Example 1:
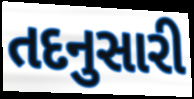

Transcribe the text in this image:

તદનુસારી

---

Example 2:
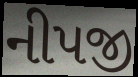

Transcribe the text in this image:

નીપજી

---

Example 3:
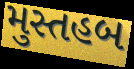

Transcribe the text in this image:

મુસ્તહબ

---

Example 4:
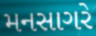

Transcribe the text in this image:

મનસાગરે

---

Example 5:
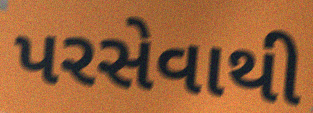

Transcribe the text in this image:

પરસેવાથી